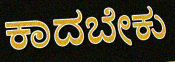
ಕಾದಬೇಕು